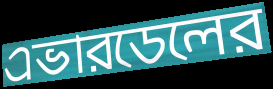
এভারডেলের